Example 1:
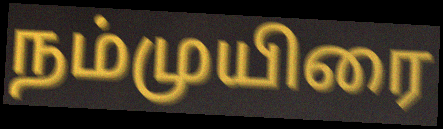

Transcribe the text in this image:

நம்முயிரை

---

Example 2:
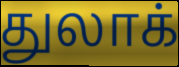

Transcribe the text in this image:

துலாக்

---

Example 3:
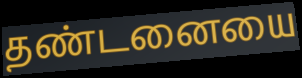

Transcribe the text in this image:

தண்டனையை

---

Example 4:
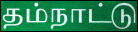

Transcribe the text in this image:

தம்நாட்டு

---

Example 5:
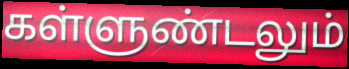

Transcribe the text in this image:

கள்ளுண்டலும்